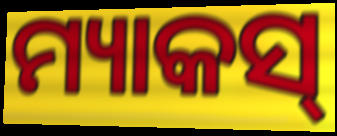
ମ୍ୟାକସ୍